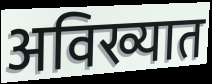
अविख्यात